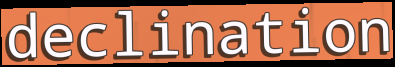
declination